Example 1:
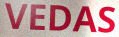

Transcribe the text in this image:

VEDAS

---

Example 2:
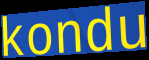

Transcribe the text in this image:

kondu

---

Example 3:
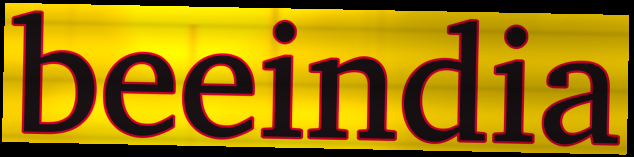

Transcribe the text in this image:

beeindia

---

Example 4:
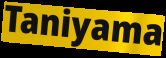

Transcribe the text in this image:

Taniyama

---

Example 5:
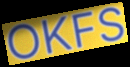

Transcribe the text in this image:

OKFS